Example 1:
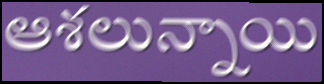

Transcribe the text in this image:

ఆశలున్నాయి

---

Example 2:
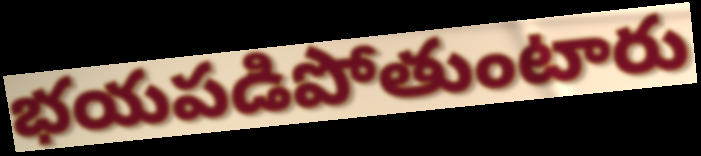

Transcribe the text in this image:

భయపడిపోతుంటారు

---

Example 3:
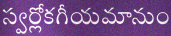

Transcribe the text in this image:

స్వర్లోకగీయమానుం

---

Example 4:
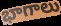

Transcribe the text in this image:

భాగాలు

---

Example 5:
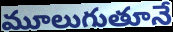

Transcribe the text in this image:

మూలుగుతూనే